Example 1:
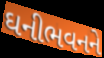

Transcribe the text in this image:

ઘનીભવનને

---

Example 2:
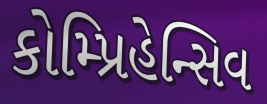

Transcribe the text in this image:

કોમ્પ્રિહેન્સિવ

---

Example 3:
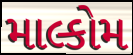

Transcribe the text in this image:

માલ્કોમ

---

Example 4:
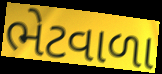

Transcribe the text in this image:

ભેટવાળા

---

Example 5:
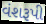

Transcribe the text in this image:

વંશરૂપી